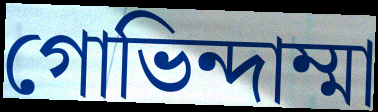
গোভিন্দাম্মা